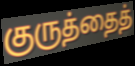
குருத்தைத்